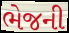
ભેજની